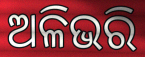
ଅଳିଭରି